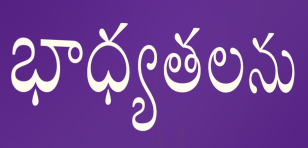
భాధ్యతలను